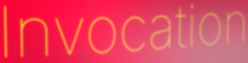
Invocation